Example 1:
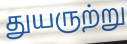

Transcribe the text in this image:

துயருற்று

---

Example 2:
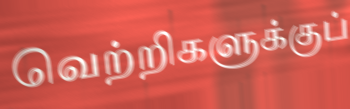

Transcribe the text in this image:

வெற்றிகளுக்குப்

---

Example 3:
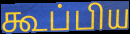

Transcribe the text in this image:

கூப்பிய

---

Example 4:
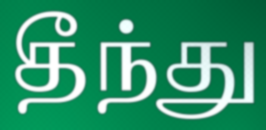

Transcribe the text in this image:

தீந்து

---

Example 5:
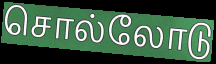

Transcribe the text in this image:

சொல்லோடு